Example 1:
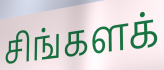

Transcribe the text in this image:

சிங்களக்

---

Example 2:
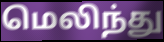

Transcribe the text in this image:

மெலிந்து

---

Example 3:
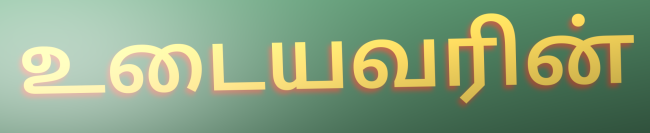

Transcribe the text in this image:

உடையவரின்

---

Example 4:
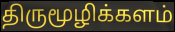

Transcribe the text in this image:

திருமூழிக்களம்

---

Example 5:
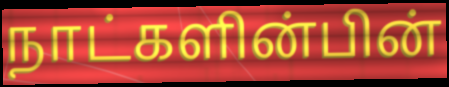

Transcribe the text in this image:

நாட்களின்பின்